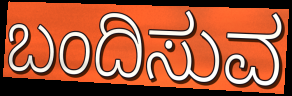
ಬಂದಿಸುವ